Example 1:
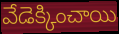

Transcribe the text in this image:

వేడెక్కించాయి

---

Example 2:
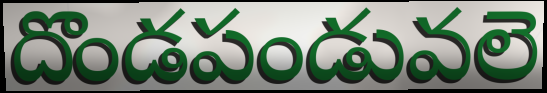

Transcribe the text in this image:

దొండపండువలె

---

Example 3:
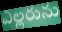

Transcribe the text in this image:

ఎల్లరును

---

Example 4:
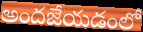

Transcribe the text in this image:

అందజేయడంలో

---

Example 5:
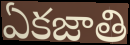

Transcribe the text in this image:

ఏకజాతి